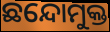
ଛନ୍ଦୋମୁକ୍ତ